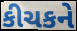
કીચકને